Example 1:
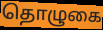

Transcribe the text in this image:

தொழுகை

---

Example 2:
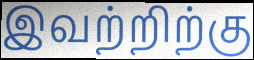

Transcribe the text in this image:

இவற்றிற்கு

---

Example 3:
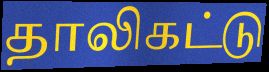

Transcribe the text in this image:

தாலிகட்டு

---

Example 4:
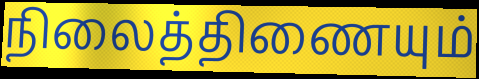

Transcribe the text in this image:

நிலைத்திணையும்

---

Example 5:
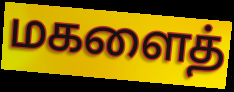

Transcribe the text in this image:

மகளைத்